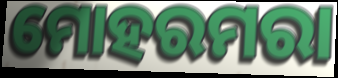
ମୋହରମରା